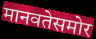
मानवतेसमोर